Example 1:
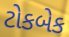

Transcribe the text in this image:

ટોકબેક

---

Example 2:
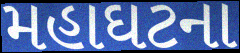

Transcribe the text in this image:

મહાઘટના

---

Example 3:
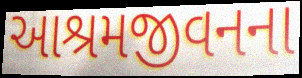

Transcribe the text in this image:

આશ્રમજીવનના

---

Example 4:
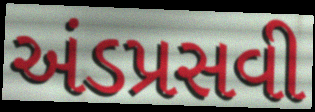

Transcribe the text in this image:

અંડપ્રસવી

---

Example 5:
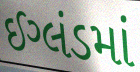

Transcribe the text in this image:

ઈગ્લંડમાં